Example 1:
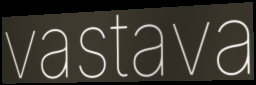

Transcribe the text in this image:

vastava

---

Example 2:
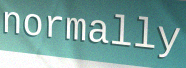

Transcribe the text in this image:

normally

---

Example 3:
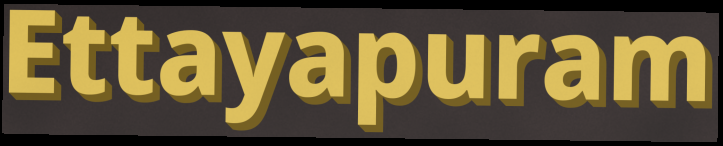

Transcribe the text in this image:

Ettayapuram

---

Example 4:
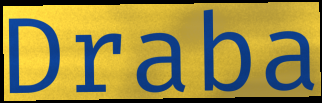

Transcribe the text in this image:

Draba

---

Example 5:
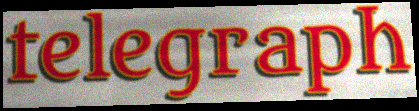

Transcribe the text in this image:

telegraph